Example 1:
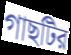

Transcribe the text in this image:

গাছটির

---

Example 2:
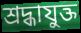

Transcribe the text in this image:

শ্রদ্ধাযুক্ত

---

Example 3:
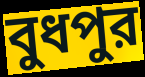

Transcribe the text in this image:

বুধপুর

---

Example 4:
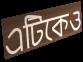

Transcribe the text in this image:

এটিকেও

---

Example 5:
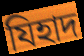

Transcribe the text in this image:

যিহাদ